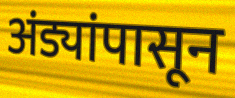
अंड्यांपासून